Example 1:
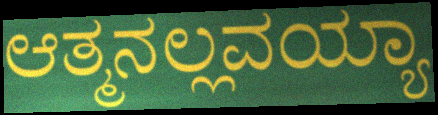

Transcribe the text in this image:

ಆತ್ಮನಲ್ಲವಯ್ಯಾ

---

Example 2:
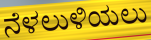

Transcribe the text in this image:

ನೆಳಲುಳಿಯಲು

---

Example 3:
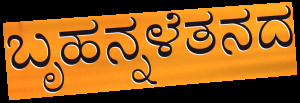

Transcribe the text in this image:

ಬೃಹನ್ನಳೆತನದ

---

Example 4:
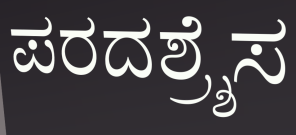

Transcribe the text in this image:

ಪರದಶ್ರ್ಶೆಸ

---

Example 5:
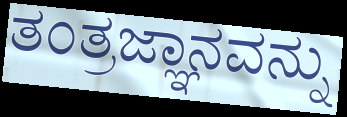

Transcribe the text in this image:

ತಂತ್ರಜ್ಞಾನವನ್ನು